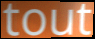
tout